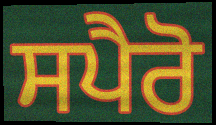
ਸਪੈਰੋ